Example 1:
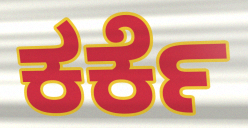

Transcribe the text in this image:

ಕರ್ಕೆ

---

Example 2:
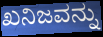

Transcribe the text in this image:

ಖನಿಜವನ್ನು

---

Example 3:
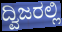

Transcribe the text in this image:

ದ್ವಿಜರಲ್ಲಿ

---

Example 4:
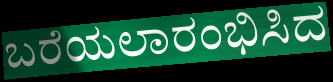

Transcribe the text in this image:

ಬರೆಯಲಾರಂಭಿಸಿದ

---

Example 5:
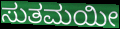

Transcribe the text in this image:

ಸುತಮಯೀ